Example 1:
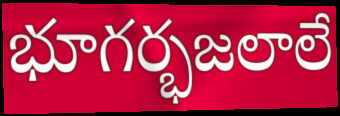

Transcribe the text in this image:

భూగర్భజలాలే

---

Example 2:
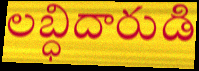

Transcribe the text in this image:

లబ్ధిదారుడి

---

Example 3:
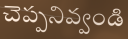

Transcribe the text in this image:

చెప్పనివ్వండి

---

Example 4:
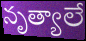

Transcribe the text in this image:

నృత్యాలే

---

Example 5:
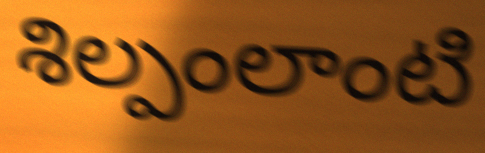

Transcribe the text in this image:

శిల్పంలాంటి